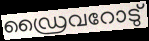
ഡ്രൈവറോടു്